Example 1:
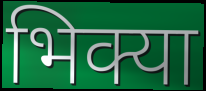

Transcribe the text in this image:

भिक्या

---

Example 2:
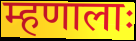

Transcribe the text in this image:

म्हणालाः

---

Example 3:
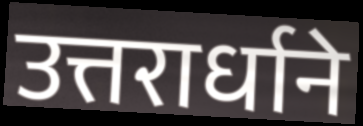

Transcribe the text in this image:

उत्तरार्धाने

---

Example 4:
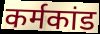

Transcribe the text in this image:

कर्मकांड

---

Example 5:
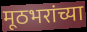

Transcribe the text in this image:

मूठभरांच्या